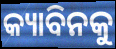
କ୍ୟାବିନକୁ